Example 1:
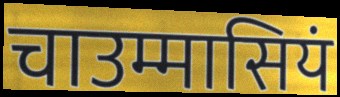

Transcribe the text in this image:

चाउम्मासियं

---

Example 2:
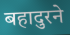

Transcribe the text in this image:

बहादुरने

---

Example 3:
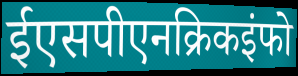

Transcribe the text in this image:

ईएसपीएनक्रिकइंफो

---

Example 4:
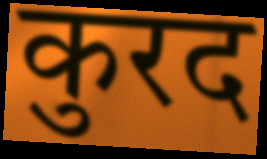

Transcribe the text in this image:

कुरद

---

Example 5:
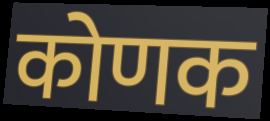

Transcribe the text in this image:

कोणक